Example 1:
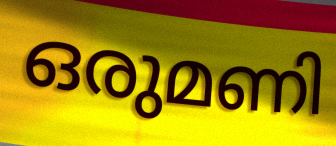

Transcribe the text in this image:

ഒരുമണി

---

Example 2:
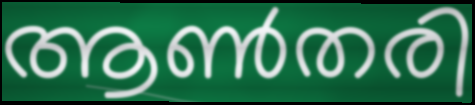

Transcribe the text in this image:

ആൺതരി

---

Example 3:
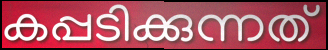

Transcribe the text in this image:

കപ്പടിക്കുന്നത്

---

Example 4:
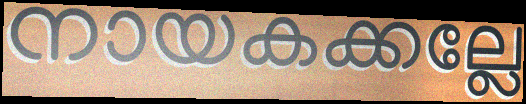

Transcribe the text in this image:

നായകക്കല്ലേ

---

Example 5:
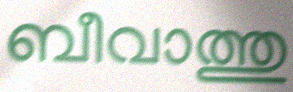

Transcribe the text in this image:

ബീവാത്തു